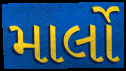
માર્લો